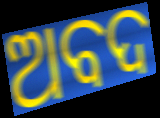
ଅବଦ